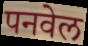
पनवेल